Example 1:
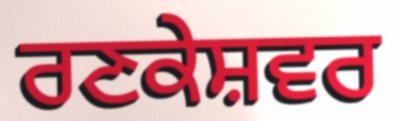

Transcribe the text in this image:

ਰਣਕੇਸ਼ਵਰ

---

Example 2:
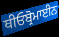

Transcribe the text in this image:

ਥੀਓਬ੍ਰੋਮਾਈਨ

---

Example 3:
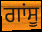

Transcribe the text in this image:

ਗਾਂਸੂ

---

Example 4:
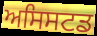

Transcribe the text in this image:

ਅਸਿਸਟਡ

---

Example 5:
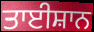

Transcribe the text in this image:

ਤਾਈਸ਼ਾਨ